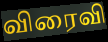
விரைவி